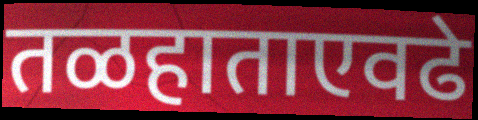
तळहाताएवढे